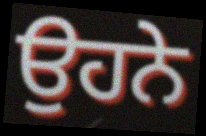
ਉਹਨੇ